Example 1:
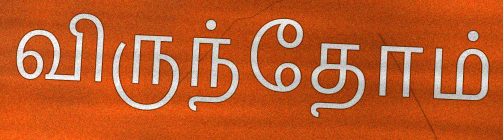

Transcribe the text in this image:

விருந்தோம்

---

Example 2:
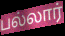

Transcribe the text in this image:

பல்லார்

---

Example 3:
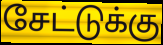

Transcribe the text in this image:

சேட்டுக்கு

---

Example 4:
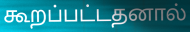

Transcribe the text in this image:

கூறப்பட்டதனால்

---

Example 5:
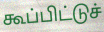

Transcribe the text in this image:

கூப்பிட்டுச்